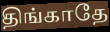
திங்காதே